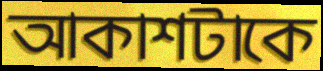
আকাশটাকে